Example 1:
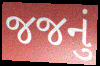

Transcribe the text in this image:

જજનું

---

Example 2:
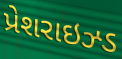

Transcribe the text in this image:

પ્રેશરાઇઝ્ડ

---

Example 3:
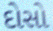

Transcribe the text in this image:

દોસો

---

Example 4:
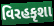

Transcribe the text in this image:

વિરહકૃશા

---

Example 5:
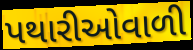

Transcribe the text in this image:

પથારીઓવાળી